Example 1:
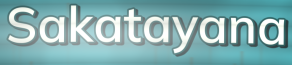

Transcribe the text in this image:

Sakatayana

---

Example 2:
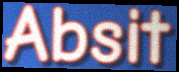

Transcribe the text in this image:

Absit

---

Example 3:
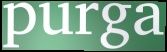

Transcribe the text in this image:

purga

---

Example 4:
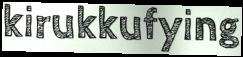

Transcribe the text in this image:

kirukkufying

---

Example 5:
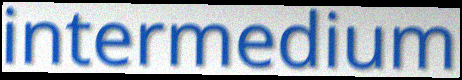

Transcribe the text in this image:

intermedium